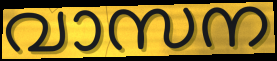
വാസന